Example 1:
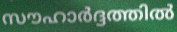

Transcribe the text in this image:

സൗഹാർദ്ദത്തിൽ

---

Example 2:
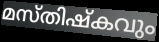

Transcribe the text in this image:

മസ്തിഷ്കവും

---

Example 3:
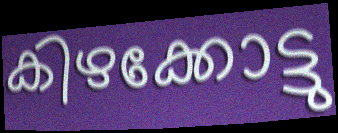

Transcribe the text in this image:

കിഴക്കോട്ടു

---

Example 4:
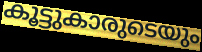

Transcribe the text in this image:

കൂട്ടുകാരുടെയും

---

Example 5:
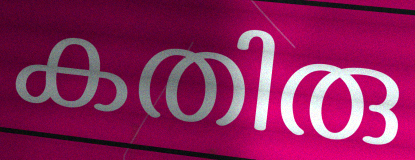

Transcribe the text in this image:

കതിരു